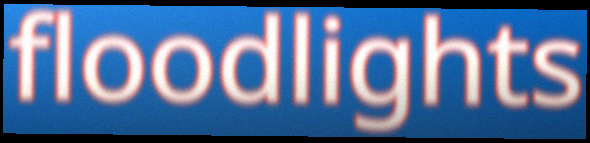
floodlights